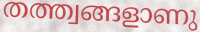
തത്ത്വങ്ങളാണു